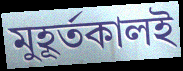
মুহূর্তকালই